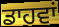
ਡਾਹਵਾਂ